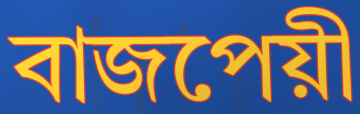
বাজপেয়ী